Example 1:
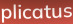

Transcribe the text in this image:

plicatus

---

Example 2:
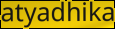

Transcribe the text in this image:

atyadhika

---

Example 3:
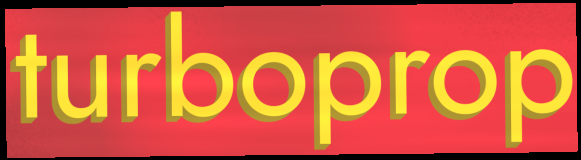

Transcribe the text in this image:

turboprop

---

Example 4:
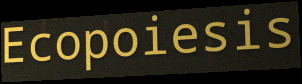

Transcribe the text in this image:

Ecopoiesis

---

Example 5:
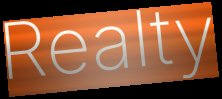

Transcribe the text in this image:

Realty